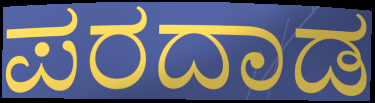
ಪರದಾಡ